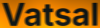
Vatsal